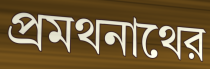
প্রমথনাথের